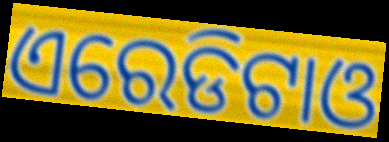
ଏରେଡିଟାଓ